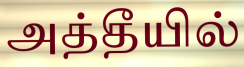
அத்தீயில்